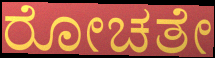
ರೋಚತೇ